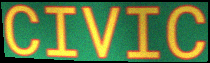
CIVIC